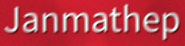
Janmathep